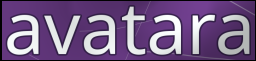
avatara